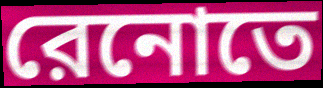
রেনোতে